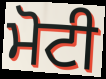
ਮੋਟੀ